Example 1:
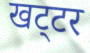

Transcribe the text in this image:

खट्‌टर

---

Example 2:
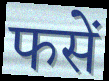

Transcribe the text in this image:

फसें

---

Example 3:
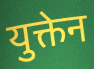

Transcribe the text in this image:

युक्तेन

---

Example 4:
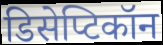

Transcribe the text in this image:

डिसेप्टिकॉन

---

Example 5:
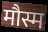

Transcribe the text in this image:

मौस्म